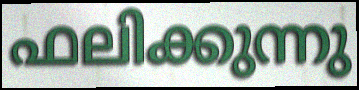
ഫലിക്കുന്നു